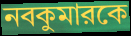
নবকুমারকে